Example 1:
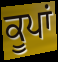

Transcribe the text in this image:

ਕੂਪਾਂ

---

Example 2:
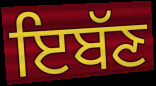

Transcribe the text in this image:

ਇਬੱਣ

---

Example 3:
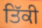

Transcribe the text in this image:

ਤਿੱਕੀ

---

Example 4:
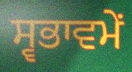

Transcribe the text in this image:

ਸ੍ਵਭਾਵਮੇਂ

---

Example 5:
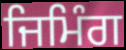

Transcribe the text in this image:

ਜਿਮਿੰਗ